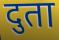
दुता